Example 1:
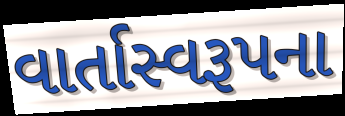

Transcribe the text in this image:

વાર્તાસ્વરૂપના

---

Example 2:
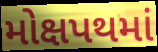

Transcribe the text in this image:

મોક્ષપથમાં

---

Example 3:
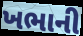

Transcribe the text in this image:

ખભાની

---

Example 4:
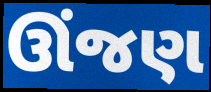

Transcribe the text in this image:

ઊંજણ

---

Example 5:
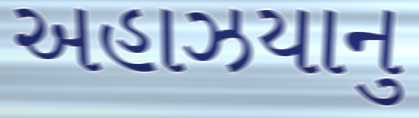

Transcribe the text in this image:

અહાઝયાનુ